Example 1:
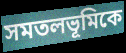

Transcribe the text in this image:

সমতলভূমিকে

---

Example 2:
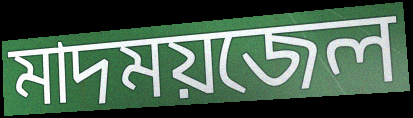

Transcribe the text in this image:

মাদময়জেল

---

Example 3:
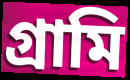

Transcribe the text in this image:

গ্রামি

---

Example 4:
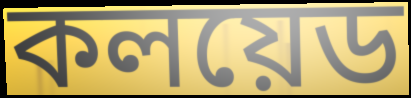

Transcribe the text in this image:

কলয়েড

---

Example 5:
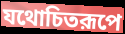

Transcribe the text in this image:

যথোচিতরূপে